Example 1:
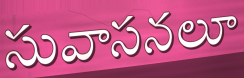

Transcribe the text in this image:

సువాసనలూ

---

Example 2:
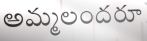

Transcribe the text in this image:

అమ్మలందరూ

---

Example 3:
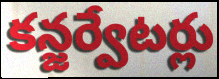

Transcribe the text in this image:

కన్జర్వేటర్లు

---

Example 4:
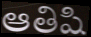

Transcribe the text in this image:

ఆతిషి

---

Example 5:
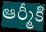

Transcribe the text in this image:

ఆర్మీకి